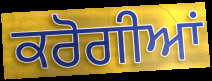
ਕਰੋਗੀਆਂ